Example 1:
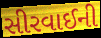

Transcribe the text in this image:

સીરવાઈની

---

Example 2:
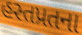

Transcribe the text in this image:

હસ્તપ્રતના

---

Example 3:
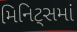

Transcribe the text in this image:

મિનિટ્સમાં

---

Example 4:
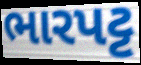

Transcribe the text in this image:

ભારપટ્ટ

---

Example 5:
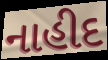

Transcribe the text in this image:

નાહીદ